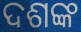
ଦଶଙ୍କ